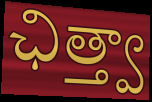
ఛిత్త్వా